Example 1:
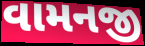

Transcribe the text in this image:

વામનજી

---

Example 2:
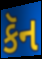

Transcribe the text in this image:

કૅન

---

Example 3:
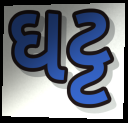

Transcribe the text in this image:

ઘટ્ટ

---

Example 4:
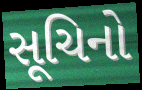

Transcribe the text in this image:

સૂચિનો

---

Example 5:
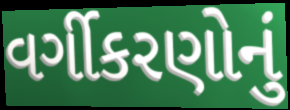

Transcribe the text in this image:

વર્ગીકરણોનું